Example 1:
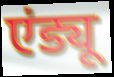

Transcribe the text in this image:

एंड्यू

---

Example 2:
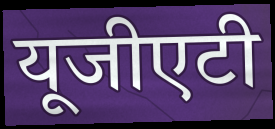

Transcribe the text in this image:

यूजीएटी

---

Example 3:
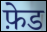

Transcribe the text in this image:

फ़ेड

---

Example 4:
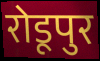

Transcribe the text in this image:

रोडूपुर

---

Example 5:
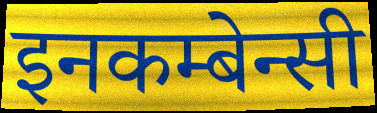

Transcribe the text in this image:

इनकम्बेन्सी